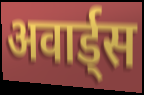
अवार्ड्स